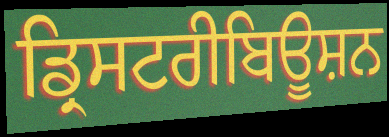
ਡ੍ਰਿਸਟਰੀਬਿਊਸ਼ਨ